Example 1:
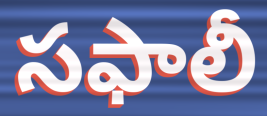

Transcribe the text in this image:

సఫాలీ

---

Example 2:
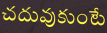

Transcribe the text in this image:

చదువుకుంటే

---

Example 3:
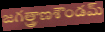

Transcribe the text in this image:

జగత్త్రాణశౌండమ్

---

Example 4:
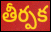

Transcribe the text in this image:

తీర్పక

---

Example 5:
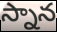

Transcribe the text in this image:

స్నాన